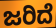
ಜರಿದೆ